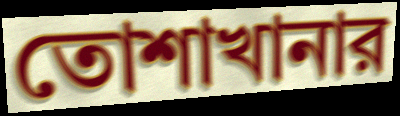
তোশাখানার